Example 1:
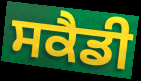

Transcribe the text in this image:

ਸਕੈਡੀ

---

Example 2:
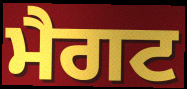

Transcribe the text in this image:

ਮੈਗਟ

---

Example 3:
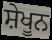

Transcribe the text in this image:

ਸ਼ੇਖੂਨ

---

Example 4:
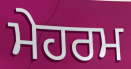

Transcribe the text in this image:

ਮੇਹਰਮ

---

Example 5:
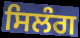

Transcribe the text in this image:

ਸਿਲੰਗ